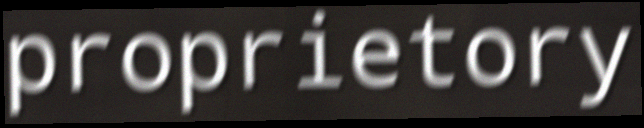
proprietory